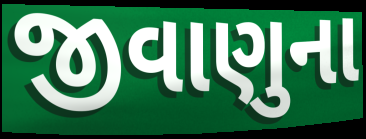
જીવાણુના